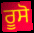
ਰੂਸੋ